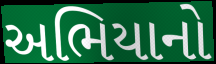
અભિયાનો